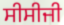
ਸੀਸੀਜੀ